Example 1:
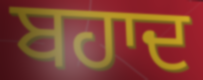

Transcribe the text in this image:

ਬਹਾਦ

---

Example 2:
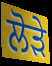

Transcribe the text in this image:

ਲੋੜੇ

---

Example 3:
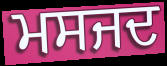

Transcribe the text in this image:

ਮਸਜਦ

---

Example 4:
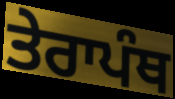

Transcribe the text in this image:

ਤੇਰਾਪੰਥ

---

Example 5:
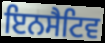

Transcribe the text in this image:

ਇਨਸੈਟਿਵ